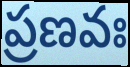
ప్రణవః